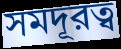
সমদূরত্ব